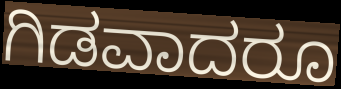
ಗಿಡವಾದರೂ